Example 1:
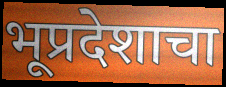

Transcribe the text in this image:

भूप्रदेशाचा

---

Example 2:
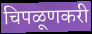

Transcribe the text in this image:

चिपळूणकरी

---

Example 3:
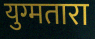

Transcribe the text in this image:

युग्मतारा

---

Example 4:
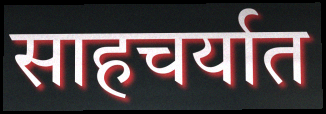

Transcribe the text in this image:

साहचर्यात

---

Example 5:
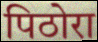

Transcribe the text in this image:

पिठोरा